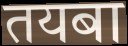
तयबा